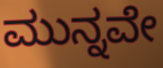
ಮುನ್ನವೇ